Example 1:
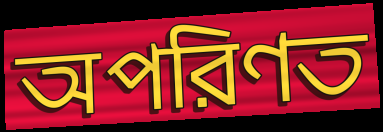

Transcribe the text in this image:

অপরিণত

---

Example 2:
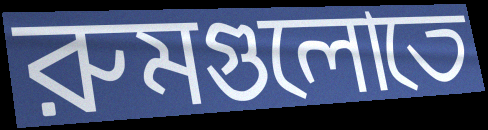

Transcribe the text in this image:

রুমগুলোতে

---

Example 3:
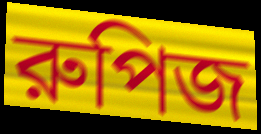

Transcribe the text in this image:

রুপিজ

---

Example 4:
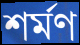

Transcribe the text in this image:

শর্মণ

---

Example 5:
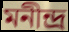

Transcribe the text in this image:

মনীন্দ্র